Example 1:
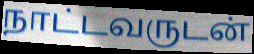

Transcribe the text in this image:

நாட்டவருடன்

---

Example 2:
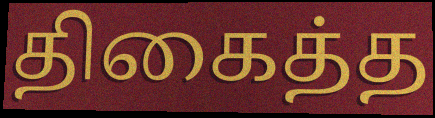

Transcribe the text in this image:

திகைத்த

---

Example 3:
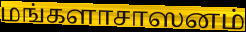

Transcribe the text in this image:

மங்களாசாஸனம்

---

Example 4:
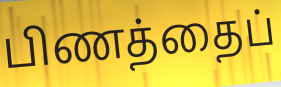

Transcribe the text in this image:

பிணத்தைப்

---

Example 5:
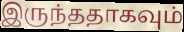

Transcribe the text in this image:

இருந்ததாகவும்